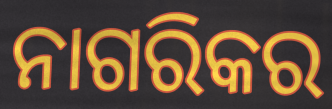
ନାଗରିକର